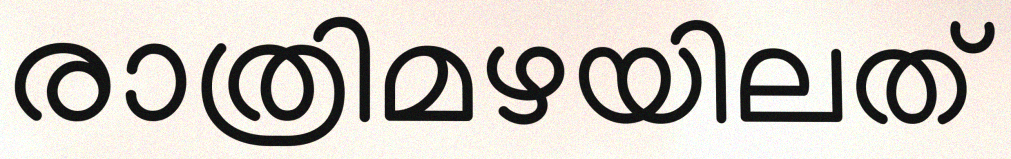
രാത്രിമഴയിലത്